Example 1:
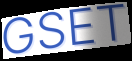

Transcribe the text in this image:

GSET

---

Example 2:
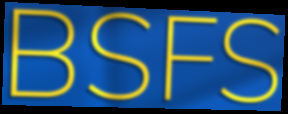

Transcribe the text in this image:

BSFS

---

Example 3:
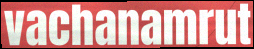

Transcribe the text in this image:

vachanamrut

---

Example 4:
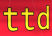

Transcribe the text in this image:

ttd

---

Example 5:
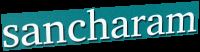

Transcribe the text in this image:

sancharam